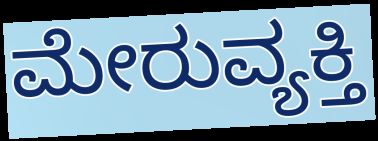
ಮೇರುವ್ಯಕ್ತಿ